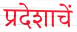
प्रदेशाचें